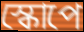
স্কোপে